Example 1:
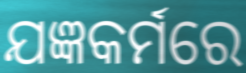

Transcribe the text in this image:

ଯଜ୍ଞକର୍ମରେ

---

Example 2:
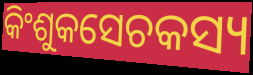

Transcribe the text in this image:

କିଂଶୁକସେଚକସ୍ୟ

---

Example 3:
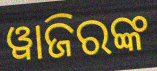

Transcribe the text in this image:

ୱାଜିରଙ୍କ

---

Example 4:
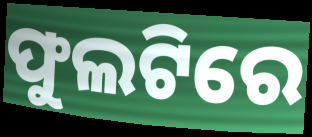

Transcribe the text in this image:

ଫୁଲଟିରେ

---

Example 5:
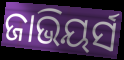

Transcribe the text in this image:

ଜାଭିୟର୍ସ